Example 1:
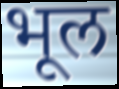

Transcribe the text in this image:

भूल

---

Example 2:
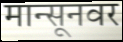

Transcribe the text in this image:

मान्सूनवर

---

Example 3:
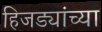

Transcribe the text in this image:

हिजड्यांच्या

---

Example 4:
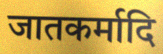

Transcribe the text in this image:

जातकर्मादि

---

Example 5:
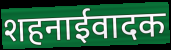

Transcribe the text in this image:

शहनाईवादक